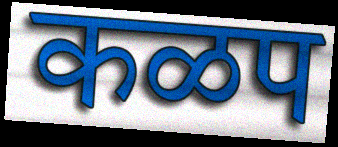
कळप